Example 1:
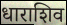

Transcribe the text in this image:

धाराशिव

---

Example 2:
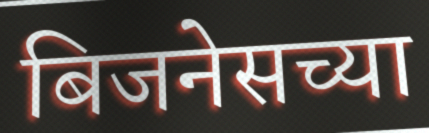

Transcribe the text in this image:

बिजनेसच्या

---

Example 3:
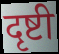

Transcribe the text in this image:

दृष्टी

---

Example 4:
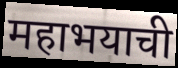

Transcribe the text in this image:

महाभयाची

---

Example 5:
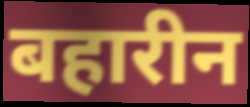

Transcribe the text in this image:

बहारीन